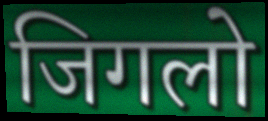
जिगलो